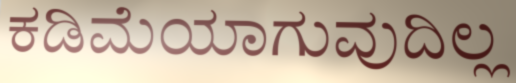
ಕಡಿಮೆಯಾಗುವುದಿಲ್ಲ